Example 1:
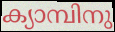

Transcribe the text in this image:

ക്യാമ്പിനു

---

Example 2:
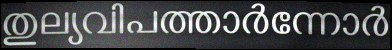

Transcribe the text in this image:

തുല്യവിപത്താർന്നോർ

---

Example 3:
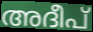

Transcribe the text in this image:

അദീപ്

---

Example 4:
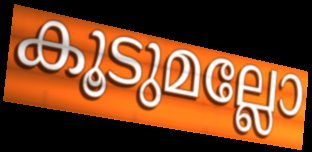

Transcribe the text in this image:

കൂടുമല്ലോ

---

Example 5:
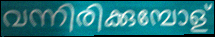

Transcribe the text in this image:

വന്നിരിക്കുമ്പോള്